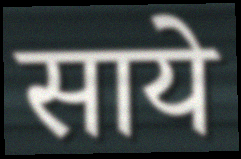
साये